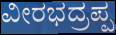
ವೀರಭದ್ರಪ್ಪ